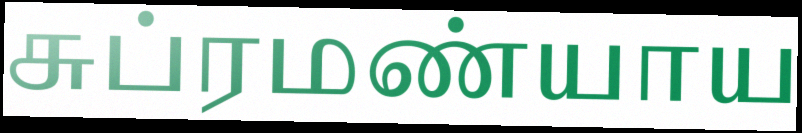
சுப்ரமண்யாய